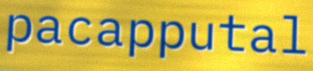
pacapputal